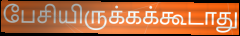
பேசியிருக்கக்கூடாது